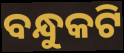
ବନ୍ଧୁକଟି